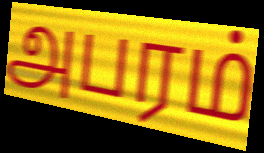
அபரம்